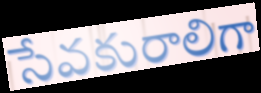
సేవకురాలిగా